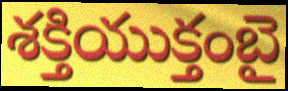
శక్తియుక్తంబై